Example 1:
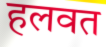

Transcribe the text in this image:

हलवत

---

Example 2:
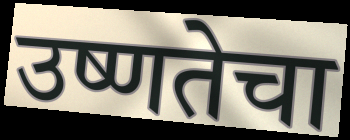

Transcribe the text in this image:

उष्णतेचा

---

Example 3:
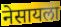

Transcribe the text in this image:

नेसायला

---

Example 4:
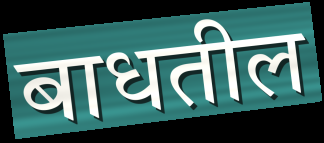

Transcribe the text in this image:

बाधतील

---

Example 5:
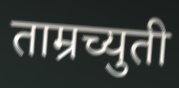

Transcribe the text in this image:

ताम्रच्युती